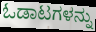
ಓಡಾಟಗಳನ್ನು